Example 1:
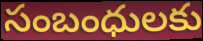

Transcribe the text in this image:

సంబంధులకు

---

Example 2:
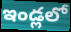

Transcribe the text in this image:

ఇండ్లలో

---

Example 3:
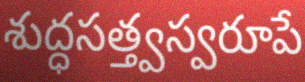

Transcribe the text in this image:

శుద్ధసత్త్వస్వరూపే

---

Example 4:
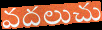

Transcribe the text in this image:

వదలుచు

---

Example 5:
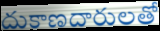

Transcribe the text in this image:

దుకాణదారులతో